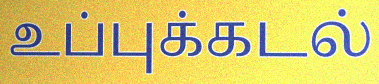
உப்புக்கடல்